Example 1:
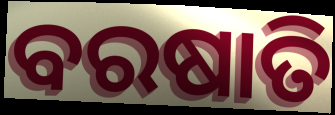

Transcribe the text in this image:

ବରଷାତି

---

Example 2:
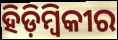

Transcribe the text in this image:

ହିଡ଼ିମ୍ବିକୀର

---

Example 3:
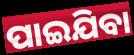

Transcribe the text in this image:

ପାଇଯିବା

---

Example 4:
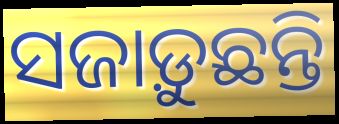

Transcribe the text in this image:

ସଜାଡ଼ୁଛନ୍ତି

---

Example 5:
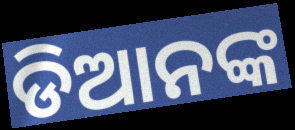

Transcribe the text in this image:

ଡିଆନଙ୍କ